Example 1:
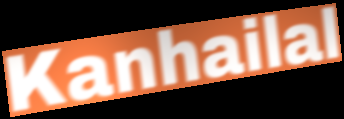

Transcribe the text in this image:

Kanhailal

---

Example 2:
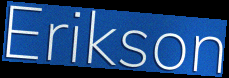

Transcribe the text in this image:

Erikson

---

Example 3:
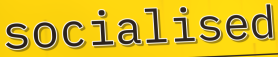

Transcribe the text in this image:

socialised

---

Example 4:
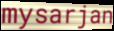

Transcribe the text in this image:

mysarjan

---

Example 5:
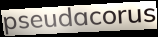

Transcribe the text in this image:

pseudacorus